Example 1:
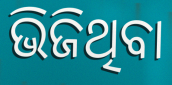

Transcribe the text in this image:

ଭିଜିଥିବା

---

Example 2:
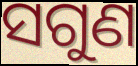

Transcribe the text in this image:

ସଗୁଣ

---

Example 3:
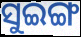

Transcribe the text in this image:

ସୁଇଙ୍ଗ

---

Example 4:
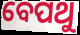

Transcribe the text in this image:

ବେପଥୁ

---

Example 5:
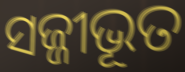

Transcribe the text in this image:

ସଜ୍ଜୀଭୂତ